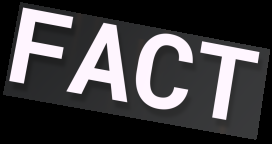
FACT